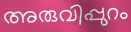
അരുവിപ്പുറം